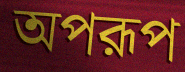
অপরূপ